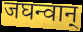
जघन्वान्